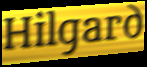
Hilgard